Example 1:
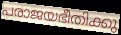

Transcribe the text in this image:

പരാജയഭീതിക്കു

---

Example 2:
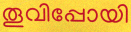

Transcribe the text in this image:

തൂവിപ്പോയി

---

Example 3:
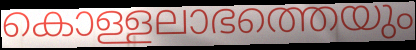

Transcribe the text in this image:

കൊള്ളലാഭത്തെയും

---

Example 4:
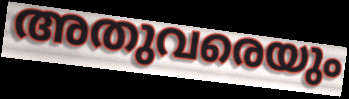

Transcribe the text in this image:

അതുവരെയും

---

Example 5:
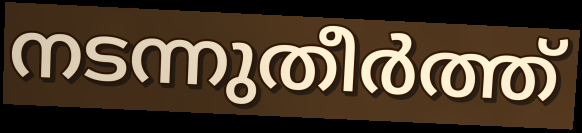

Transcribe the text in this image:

നടന്നുതീർത്ത്